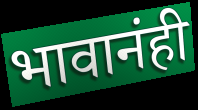
भावानंही